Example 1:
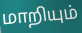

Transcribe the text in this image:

மாறியும்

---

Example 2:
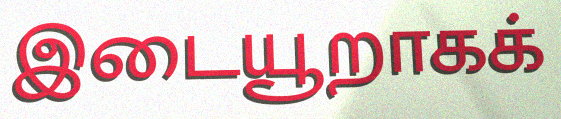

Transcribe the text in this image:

இடையூறாகக்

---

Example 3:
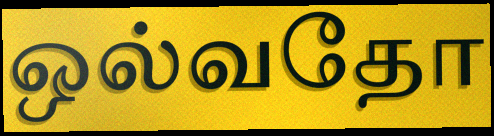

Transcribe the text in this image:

ஒல்வதோ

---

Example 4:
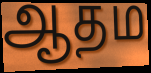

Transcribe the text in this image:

ஆதம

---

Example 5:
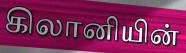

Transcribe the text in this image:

கிலானியின்